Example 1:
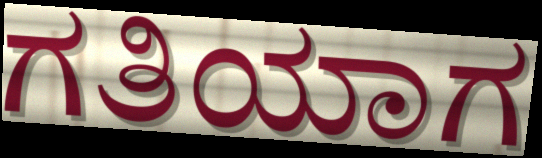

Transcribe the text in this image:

ಗತಿಯಾಗ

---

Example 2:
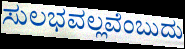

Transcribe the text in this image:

ಸುಲಭವಲ್ಲವೆಂಬುದು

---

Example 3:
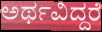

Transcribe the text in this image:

ಅರ್ಥವಿದ್ದರೆ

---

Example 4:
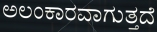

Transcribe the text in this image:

ಅಲಂಕಾರವಾಗುತ್ತದೆ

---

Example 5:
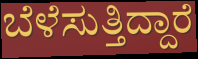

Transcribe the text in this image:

ಬೆಳೆಸುತ್ತಿದ್ದಾರೆ